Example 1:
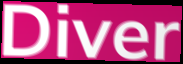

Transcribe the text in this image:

Diver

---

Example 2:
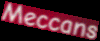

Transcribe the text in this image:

Meccans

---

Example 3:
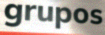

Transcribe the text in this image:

grupos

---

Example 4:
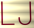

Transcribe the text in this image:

LJ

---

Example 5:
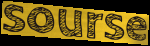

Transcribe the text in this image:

sourse